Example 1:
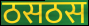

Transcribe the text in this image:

ठसठस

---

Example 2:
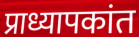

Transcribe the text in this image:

प्राध्यापकांत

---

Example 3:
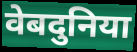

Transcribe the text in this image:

वेबदुनिया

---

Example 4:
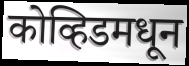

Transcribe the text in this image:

कोव्हिडमधून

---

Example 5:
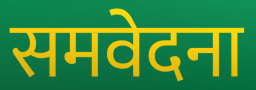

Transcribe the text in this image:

समवेदना